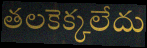
తలకెక్కలేదు